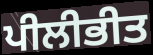
ਪੀਲੀਭੀਤ